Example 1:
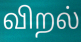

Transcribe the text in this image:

விறல்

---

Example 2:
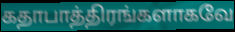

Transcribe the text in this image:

கதாபாத்திரங்களாகவே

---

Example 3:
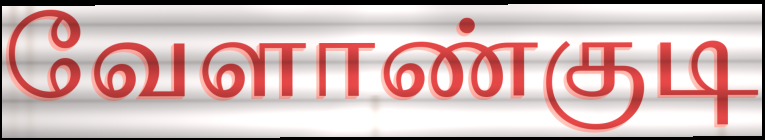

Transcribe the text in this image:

வேளாண்குடி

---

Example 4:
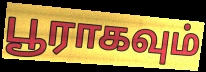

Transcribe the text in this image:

பூராகவும்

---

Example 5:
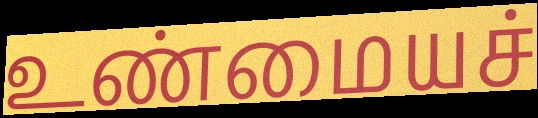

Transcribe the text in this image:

உண்மையச்